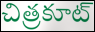
చిత్రకూట్